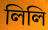
লিলি